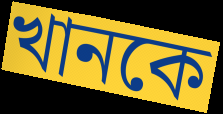
খানকে